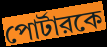
পোর্টারকে